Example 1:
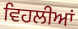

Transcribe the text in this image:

ਵਿਹਲੀਆਂ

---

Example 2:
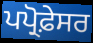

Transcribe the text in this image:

ਪਪ੍ਰੋਫ਼ੇਸਰ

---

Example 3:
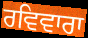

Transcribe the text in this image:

ਰਵਿਵਾਰਾ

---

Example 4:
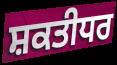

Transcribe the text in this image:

ਸ਼ਕਤੀਧਰ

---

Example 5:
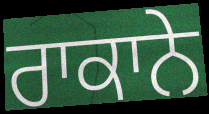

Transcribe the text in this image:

ਰਾਕਾਨੇ